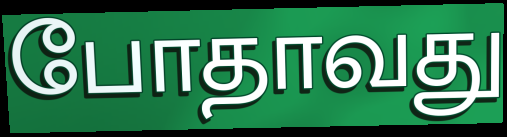
போதாவது